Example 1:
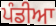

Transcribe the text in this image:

ਪੰਡੀਆ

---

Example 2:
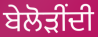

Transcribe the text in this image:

ਬੇਲੋੜੀਂਦੀ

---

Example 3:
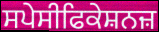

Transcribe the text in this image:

ਸਪੇਸੀਫਿਕੇਸ਼ਨਜ਼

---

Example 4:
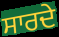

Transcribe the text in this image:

ਸਾਰਦੇ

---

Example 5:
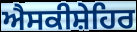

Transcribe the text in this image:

ਐਸਕੀਸ਼ੇਹਿਰ